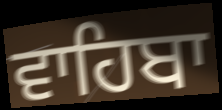
ਵਾਹਿਬਾ